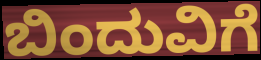
ಬಿಂದುವಿಗೆ